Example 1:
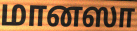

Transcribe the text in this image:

மானஸா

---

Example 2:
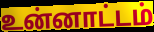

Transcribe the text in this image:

உன்னாட்டம்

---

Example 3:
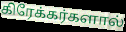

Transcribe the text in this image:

கிரேக்கர்களால்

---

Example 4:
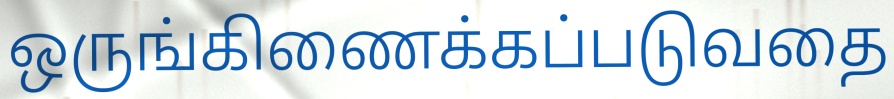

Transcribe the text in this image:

ஒருங்கிணைக்கப்படுவதை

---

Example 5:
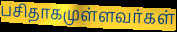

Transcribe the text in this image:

பசிதாகமுள்ளவர்கள்